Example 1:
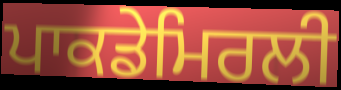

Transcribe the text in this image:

ਪਾਕਡੇਮਿਰਲੀ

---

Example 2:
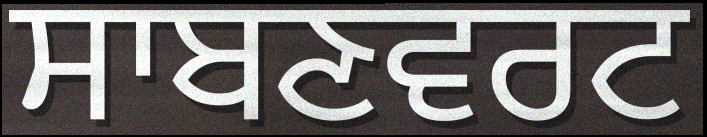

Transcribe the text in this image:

ਸਾਬਣਵਰਟ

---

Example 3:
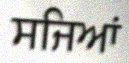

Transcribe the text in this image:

ਸਜਿਆਂ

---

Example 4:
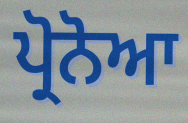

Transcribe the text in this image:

ਪ੍ਰੋਨੋਆ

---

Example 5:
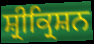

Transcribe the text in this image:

ਸ਼੍ਰੀਕ੍ਰਿਸ਼ਨ